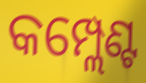
କମ୍ପ୍ଲେଣ୍ଟ